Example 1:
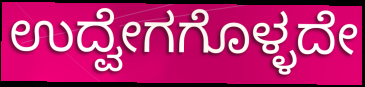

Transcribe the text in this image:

ಉದ್ವೇಗಗೊಳ್ಳದೇ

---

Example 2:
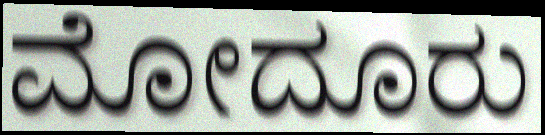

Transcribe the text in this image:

ಮೋದೂರು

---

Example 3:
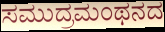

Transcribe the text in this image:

ಸಮುದ್ರಮಂಥನದ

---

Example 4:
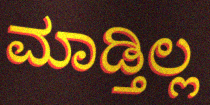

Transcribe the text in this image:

ಮಾಡ್ತಿಲ್ಲ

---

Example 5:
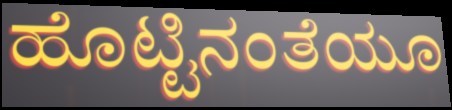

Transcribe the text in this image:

ಹೊಟ್ಟಿನಂತೆಯೂ